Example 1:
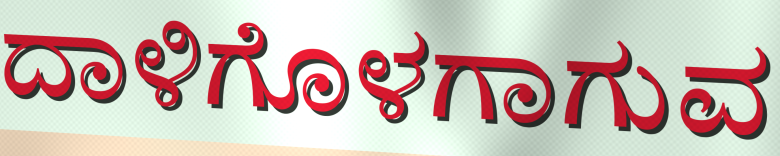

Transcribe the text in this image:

ದಾಳಿಗೊಳಗಾಗುವ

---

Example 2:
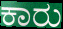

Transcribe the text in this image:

ಕಾರು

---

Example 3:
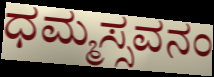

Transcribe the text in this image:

ಧಮ್ಮಸ್ಸವನಂ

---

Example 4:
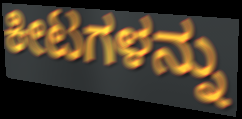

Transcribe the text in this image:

ಕೀಟಗಳನ್ನು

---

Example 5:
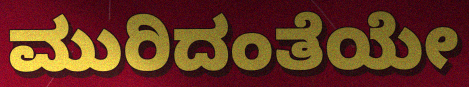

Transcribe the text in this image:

ಮುರಿದಂತೆಯೇ